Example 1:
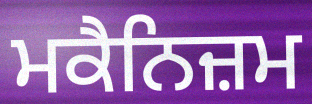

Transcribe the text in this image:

ਮਕੈਨਿਜ਼ਮ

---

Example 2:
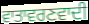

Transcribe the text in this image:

ਵਾਤਾਵਰਣਵਾਦੀ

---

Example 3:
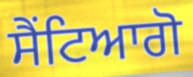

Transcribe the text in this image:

ਸੈਂਟਿਆਗੋ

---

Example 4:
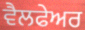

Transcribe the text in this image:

ਵੈਲਫੇਅਰ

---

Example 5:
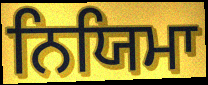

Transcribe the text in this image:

ਨਿਯਿਮਾ